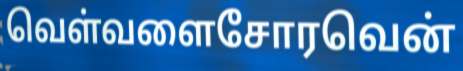
வெள்வளைசோரவென்